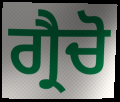
ਗ੍ਰੈਚੋ